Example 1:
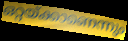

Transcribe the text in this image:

ഒറ്റയ്ക്കാണെന്നും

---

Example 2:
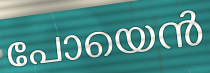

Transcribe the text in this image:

പോയെൻ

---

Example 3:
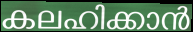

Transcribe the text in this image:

കലഹിക്കാൻ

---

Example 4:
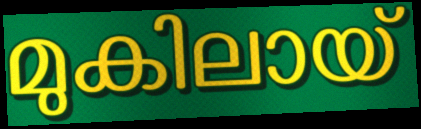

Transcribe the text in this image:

മുകിലായ്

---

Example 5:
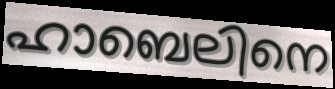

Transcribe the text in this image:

ഹാബെലിനെ